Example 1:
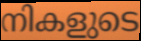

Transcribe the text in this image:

നികളുടെ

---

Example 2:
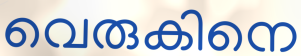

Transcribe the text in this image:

വെരുകിനെ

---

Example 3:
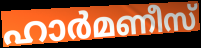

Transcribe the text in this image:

ഹാർമണീസ്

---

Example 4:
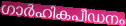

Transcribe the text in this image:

ഗാർഹികപീഡനം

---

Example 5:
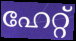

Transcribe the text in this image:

ഹേറ്റ്